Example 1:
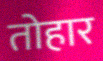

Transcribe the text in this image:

तोहार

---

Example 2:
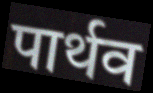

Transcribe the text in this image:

पार्थव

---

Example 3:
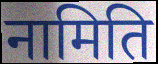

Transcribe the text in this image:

नामिति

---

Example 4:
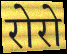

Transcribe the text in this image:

रोरो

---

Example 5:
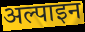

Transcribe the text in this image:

अल्पाइन